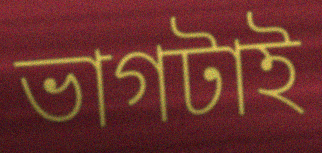
ভাগটাই